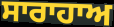
ਸਾਰਾਹਾਅ